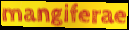
mangiferae